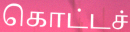
கொட்டச்